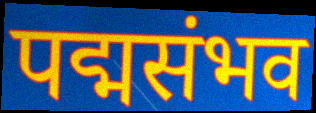
पद्मसंभव